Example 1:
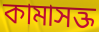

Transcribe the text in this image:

কামাসক্ত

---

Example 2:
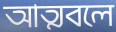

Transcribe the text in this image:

আত্মবলে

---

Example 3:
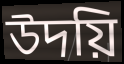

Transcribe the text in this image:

উদয়ি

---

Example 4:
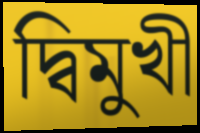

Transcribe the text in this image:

দ্বিমুখী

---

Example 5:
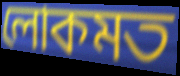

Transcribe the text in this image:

লোকমত